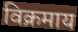
विक्रमाय